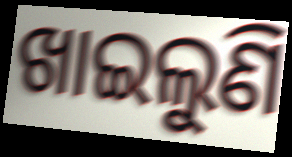
ଖାଇଲୁଣି